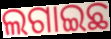
ଲଗାଇଛ